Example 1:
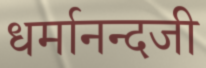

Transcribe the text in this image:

धर्मानन्दजी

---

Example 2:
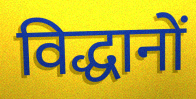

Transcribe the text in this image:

विद्धानों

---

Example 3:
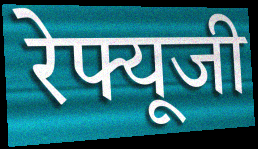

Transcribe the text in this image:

रेफ्यूजी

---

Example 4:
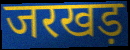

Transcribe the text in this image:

जरखड़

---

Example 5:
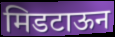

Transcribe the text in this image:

मिडटाऊन